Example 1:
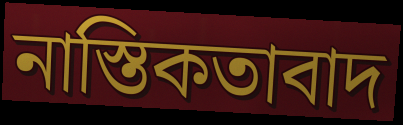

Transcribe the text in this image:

নাস্তিকতাবাদ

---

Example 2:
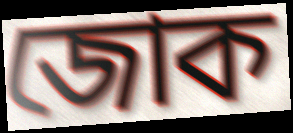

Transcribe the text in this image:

জোক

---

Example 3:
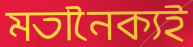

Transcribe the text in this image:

মতানৈক্যই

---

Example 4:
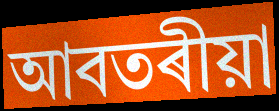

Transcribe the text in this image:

আবতৰীয়া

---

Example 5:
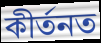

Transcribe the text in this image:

কীৰ্তনত